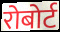
रोबोर्ट